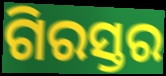
ଗିରସ୍ତର